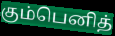
கும்பெனித்